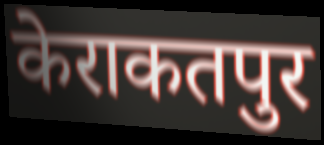
केराकतपुर